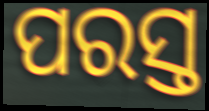
ପରସ୍ତ